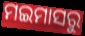
ମଇମାସରୁ